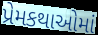
પ્રેમકથાઓમાં